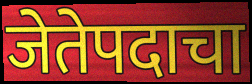
जेतेपदाचा